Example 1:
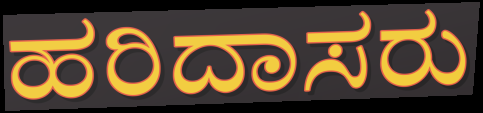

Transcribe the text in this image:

ಹರಿದಾಸರು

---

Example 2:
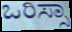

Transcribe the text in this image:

ಒರಿಸ್ಸಾ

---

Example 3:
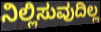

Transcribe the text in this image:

ನಿಲ್ಲಿಸುವುದಿಲ್ಲ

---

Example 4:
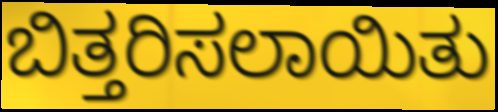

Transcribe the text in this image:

ಬಿತ್ತರಿಸಲಾಯಿತು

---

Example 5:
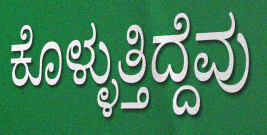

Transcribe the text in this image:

ಕೊಳ್ಳುತ್ತಿದ್ದೆವು